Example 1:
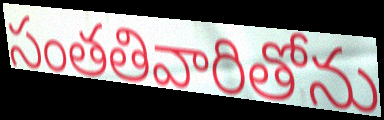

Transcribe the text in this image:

సంతతివారితోను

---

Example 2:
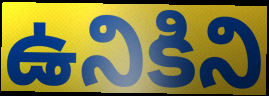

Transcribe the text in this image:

ఉనికిని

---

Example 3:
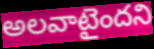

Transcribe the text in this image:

అలవాటైందని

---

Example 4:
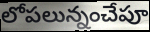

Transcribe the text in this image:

లోపలున్నంచేపూ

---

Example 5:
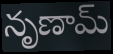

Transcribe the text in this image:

నృణామ్